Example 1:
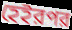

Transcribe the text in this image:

হেইরপর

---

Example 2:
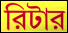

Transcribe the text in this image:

রিটার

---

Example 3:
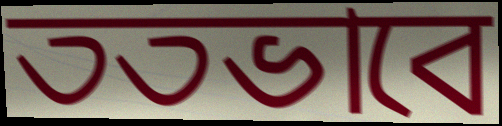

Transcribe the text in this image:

ততভাবে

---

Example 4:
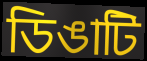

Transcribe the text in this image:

ডিঙাটি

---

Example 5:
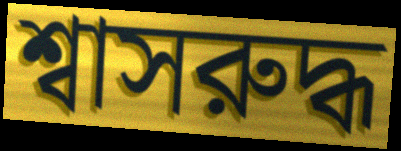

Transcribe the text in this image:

শ্বাসরুদ্ধ